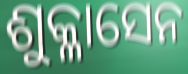
ଶୁକ୍ଳାସେନ